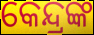
କେନ୍ଦ୍ରଙ୍କ